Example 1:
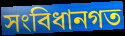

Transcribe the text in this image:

সংবিধানগত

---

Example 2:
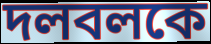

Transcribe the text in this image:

দলবলকে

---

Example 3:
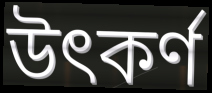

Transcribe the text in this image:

উৎকর্ণ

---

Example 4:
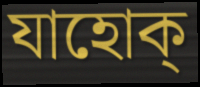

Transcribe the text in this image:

যাহোক্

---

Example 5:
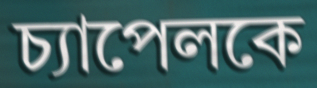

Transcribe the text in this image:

চ্যাপেলকে